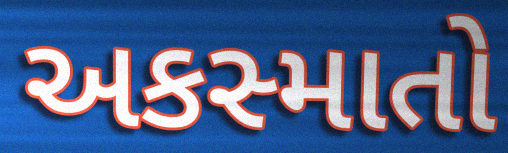
અકસ્માતો